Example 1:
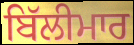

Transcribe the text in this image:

ਬਿੱਲੀਮਾਰ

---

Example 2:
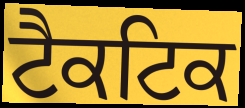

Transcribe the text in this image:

ਟੈਕਟਿਕ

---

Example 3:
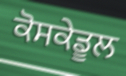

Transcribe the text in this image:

ਕੋਸਕੇਡੂਲ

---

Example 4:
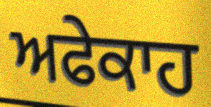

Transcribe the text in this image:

ਅਫੇਕਾਹ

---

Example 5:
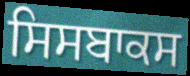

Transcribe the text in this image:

ਸਿਸਬਾਕਸ